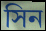
সিন